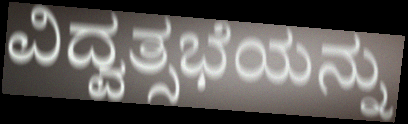
ವಿದ್ವತ್ಸಭೆಯನ್ನು